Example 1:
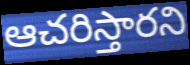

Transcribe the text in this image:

ఆచరిస్తారని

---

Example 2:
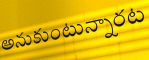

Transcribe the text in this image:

అనుకుంటున్నారట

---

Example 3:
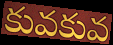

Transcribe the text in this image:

కువకువ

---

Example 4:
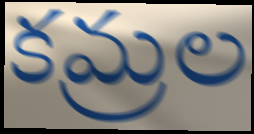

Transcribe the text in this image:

కమ్రల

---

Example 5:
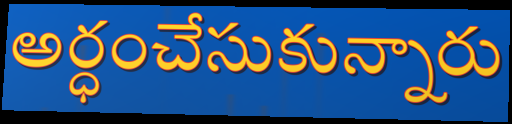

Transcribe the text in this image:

అర్ధంచేసుకున్నారు